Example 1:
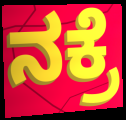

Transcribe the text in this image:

ನಕ್ರೆ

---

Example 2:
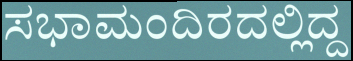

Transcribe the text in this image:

ಸಭಾಮಂದಿರದಲ್ಲಿದ್ದ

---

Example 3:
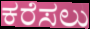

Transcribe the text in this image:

ಕರೆಸಲು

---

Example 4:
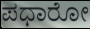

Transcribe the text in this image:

ಪಧಾರೋ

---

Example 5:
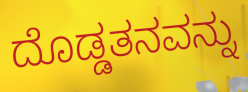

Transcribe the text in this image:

ದೊಡ್ಡತನವನ್ನು